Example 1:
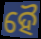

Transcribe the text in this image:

ହୈ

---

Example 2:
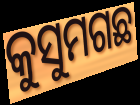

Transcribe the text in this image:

କୁସୁମଗଛ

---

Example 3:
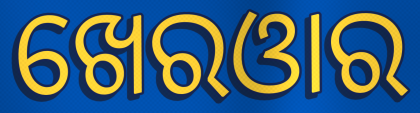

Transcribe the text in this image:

ଖେରଓାର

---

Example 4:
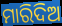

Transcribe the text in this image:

ମାରିଦିଅ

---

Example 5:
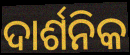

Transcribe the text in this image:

ଦାର୍ଶନିକ